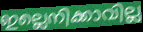
ഇല്ലെനിക്കാവില്ല